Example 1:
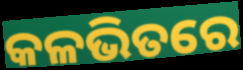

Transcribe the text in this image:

କଳଭିତରେ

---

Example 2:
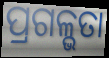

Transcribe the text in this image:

ପ୍ରଗଳ୍ଭତା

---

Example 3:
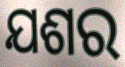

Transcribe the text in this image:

ଯଶର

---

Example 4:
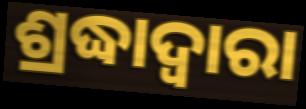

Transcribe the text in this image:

ଶ୍ରଦ୍ଧାଦ୍ୱାରା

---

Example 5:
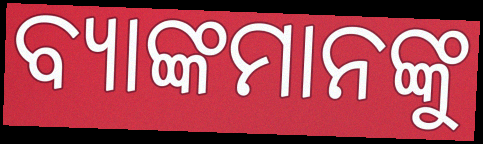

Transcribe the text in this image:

ବ୍ୟାଙ୍କମାନଙ୍କୁ